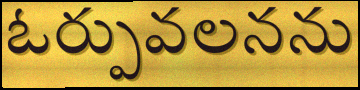
ఓర్పువలనను